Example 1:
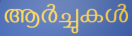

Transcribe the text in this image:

ആർച്ചുകൾ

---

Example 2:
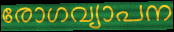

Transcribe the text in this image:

രോഗവ്യാപന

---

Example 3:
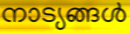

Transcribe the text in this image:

നാട്യങ്ങൾ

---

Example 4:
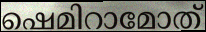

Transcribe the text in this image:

ഷെമിറാമോത്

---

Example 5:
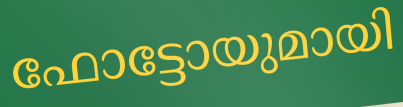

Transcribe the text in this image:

ഫോട്ടോയുമായി